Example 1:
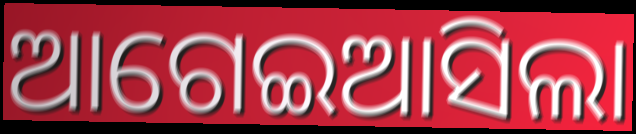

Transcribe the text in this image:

ଆଗେଇଆସିଲା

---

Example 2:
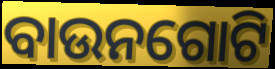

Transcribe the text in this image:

ବାଉନଗୋଟି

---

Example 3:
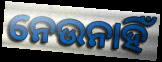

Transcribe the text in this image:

ନେଉନାହିଁ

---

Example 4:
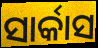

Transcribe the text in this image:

ସାର୍କାସ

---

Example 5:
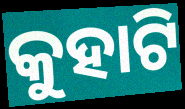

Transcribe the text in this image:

କୁହାଟି